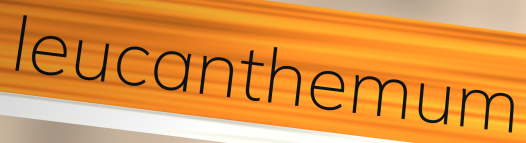
leucanthemum